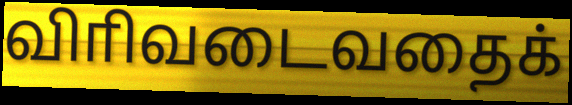
விரிவடைவதைக்